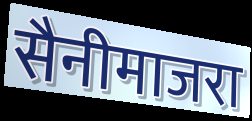
सैनीमाजरा